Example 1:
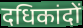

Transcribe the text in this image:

दधिकांदों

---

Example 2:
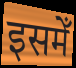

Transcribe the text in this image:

इसमेँ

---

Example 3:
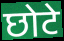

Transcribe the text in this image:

छोटे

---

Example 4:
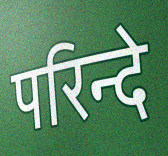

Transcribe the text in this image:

परिन्दे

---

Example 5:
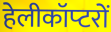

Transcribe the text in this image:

हेलीकॉप्‍टरों